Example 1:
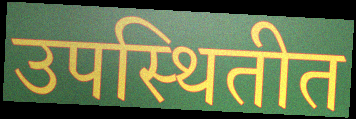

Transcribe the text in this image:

उपस्थितीत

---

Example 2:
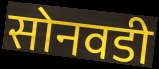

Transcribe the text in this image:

सोनवडी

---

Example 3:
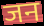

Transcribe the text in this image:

जन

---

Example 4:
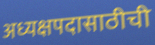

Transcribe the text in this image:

अध्यक्षपदासाठीची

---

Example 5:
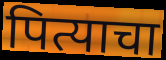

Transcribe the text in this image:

पित्याचा